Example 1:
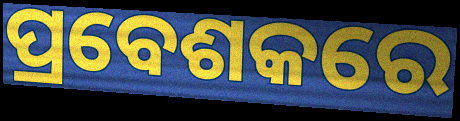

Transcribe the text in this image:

ପ୍ରବେଶକରେ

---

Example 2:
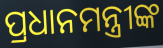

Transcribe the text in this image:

ପ୍ରଧାନମନ୍ତ୍ରୀଙ୍କ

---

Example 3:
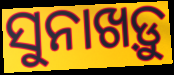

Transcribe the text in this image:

ସୁନାଖଡ଼ୁ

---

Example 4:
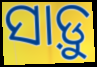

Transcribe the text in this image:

ସାଡ଼ୁ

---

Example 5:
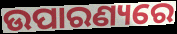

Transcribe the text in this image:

ଉପାରଣ୍ୟରେ